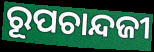
ରୂପଚାନ୍ଦଜୀ